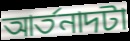
আর্তনাদটা